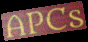
APCs